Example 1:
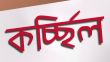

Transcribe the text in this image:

কর্চ্ছিল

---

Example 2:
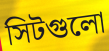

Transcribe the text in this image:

সিটগুলো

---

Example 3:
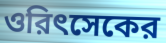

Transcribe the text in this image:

ওরিৎসেকের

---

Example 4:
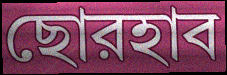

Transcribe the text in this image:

ছোরহাব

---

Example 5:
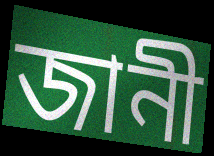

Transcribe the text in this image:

জানী